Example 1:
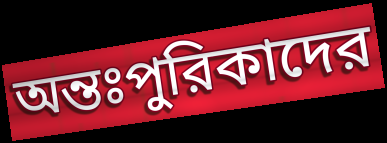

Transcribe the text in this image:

অন্তঃপুরিকাদের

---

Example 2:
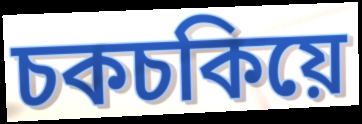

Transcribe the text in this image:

চকচকিয়ে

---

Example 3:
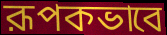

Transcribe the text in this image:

রূপকভাবে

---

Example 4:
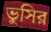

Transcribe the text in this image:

ভুসির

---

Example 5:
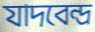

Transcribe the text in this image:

যাদবেন্দ্র